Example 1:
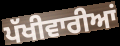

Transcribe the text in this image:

ਪੱਖੀਵਾਰੀਆਂ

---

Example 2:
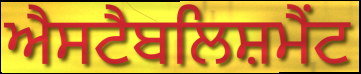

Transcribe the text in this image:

ਐਸਟੈਬਲਿਸ਼ਮੈਂਟ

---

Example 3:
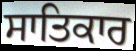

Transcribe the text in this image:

ਸਾਤਿਕਾਰ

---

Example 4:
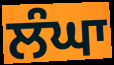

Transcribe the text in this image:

ਲੰਘਾ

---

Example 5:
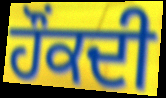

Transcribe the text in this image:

ਹੌਂਕਦੀ